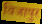
विजापुर